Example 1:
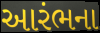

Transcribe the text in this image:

આરંભના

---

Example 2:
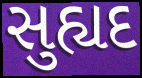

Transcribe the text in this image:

સુહ્યદ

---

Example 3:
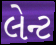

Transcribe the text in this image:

લેન્ટ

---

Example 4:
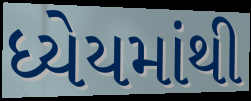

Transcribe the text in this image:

ધ્યેયમાંથી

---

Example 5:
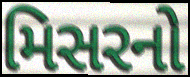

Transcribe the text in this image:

મિસરનો